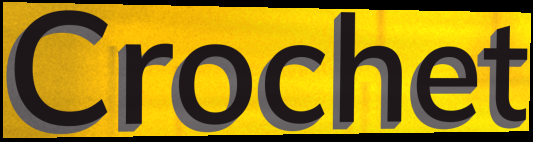
Crochet